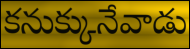
కనుక్కునేవాడు